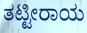
ತಟ್ಟೀರಾಯ